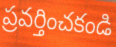
ప్రవర్తించకండి